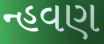
ન્હવણ